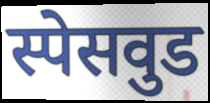
स्पेसवुड